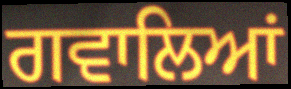
ਗਵਾਲਿਆਂ